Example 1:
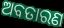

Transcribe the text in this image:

ଅବତାରଣ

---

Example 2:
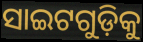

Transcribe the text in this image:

ସାଇଟଗୁଡ଼ିକୁ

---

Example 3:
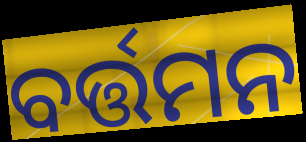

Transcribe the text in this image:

ବର୍ତ୍ତମନ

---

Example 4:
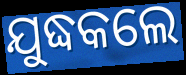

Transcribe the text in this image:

ଯୁଦ୍ଧକଲେ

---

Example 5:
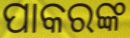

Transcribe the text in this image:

ପାକରଙ୍କ